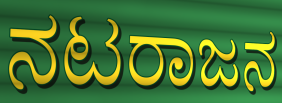
ನಟರಾಜನ